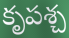
కృపశ్చ